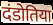
दंडोतिया